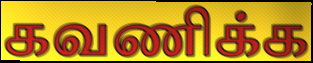
கவணிக்க